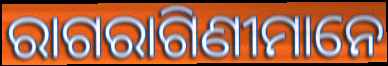
ରାଗରାଗିଣୀମାନେ